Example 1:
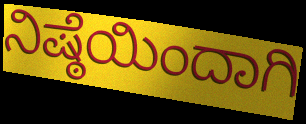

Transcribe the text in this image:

ನಿಷ್ಠೆಯಿಂದಾಗಿ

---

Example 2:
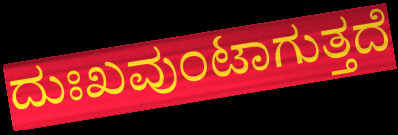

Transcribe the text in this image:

ದುಃಖವುಂಟಾಗುತ್ತದೆ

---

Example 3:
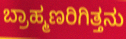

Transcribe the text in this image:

ಬ್ರಾಹ್ಮಣರಿಗಿತ್ತನು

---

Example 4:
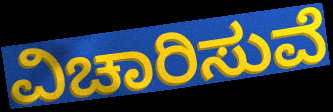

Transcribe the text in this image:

ವಿಚಾರಿಸುವೆ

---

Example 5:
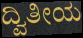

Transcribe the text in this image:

ದ್ವಿತೀಯ